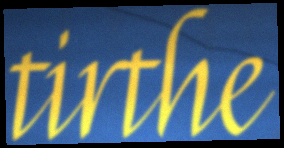
tirthe